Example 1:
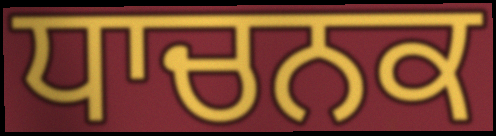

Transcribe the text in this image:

ਧਾਚਨਕ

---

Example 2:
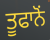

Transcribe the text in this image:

ਤੂਫਾਨੋਂ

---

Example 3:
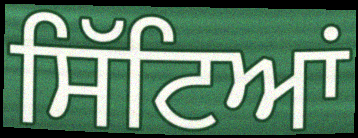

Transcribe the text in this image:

ਸਿੱਟਿਆਂ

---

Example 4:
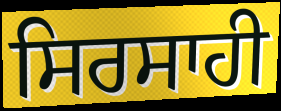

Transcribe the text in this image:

ਸਿਰਸਾਹੀ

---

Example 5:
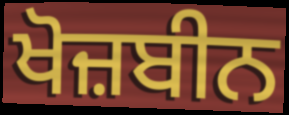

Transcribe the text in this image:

ਖੋਜ਼ਬੀਨ